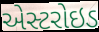
એસ્ટરોઇડ